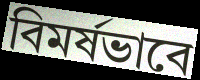
বিমর্ষভাবে